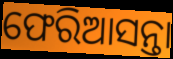
ଫେରିଆସନ୍ତା